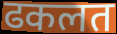
ढकलत